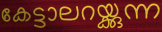
കേട്ടാലറയ്ക്കുന്ന